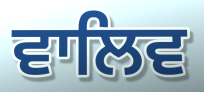
ਵਾਲਿਵ